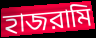
হাজরামি